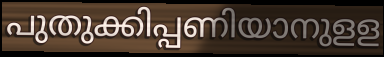
പുതുക്കിപ്പണിയാനുളള